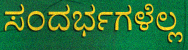
ಸಂದರ್ಭಗಳೆಲ್ಲ